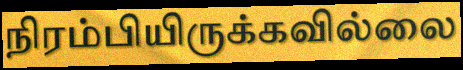
நிரம்பியிருக்கவில்லை